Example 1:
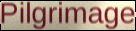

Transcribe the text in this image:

Pilgrimage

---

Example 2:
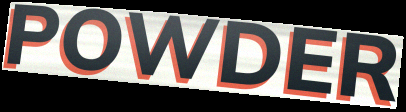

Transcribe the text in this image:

POWDER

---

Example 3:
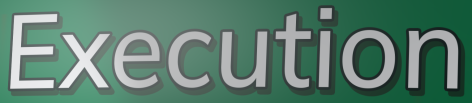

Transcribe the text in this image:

Execution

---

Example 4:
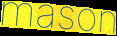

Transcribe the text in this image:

mason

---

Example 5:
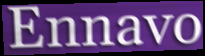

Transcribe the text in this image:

Ennavo